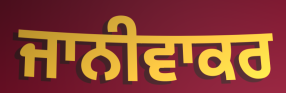
ਜਾਨੀਵਾਕਰ